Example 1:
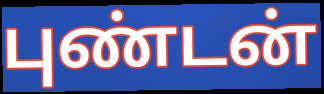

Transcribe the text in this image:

புண்டன்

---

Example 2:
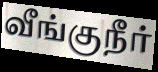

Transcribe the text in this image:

வீங்குநீர்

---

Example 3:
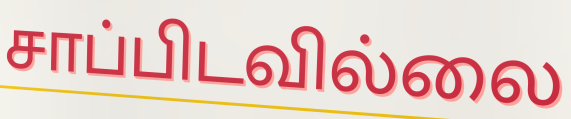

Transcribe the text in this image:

சாப்பிடவில்லை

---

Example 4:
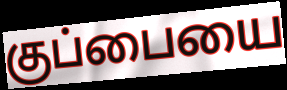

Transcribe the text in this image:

குப்பையை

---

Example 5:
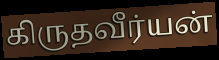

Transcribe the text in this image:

கிருதவீர்யன்